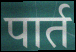
पार्त